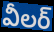
వీలర్